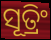
ସୂତ୍ରିଂ